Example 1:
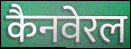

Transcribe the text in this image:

कैनवेरल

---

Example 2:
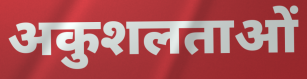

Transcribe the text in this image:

अकुशलताओं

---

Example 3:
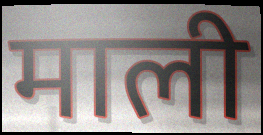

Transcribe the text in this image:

माली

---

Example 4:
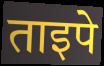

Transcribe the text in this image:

ताइपे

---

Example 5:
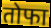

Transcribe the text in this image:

तोफा